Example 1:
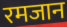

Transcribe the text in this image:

रमजान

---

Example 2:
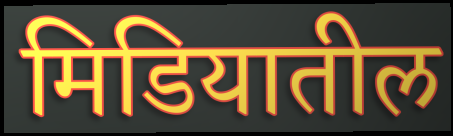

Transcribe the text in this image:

मिडियातील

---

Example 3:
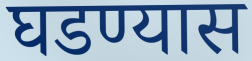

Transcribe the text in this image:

घडण्यास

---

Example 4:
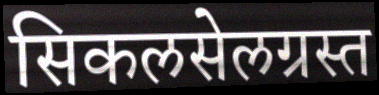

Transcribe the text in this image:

सिकलसेलग्रस्त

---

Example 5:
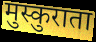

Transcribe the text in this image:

मुस्कुराता